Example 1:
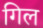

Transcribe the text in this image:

गिल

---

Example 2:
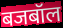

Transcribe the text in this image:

बजबॉल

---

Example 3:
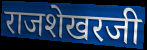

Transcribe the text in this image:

राजशेखरजी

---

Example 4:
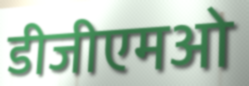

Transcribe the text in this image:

डीजीएमओ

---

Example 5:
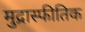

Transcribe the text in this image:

मुद्रास्फीतिक